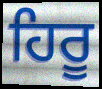
ਹਿਰੂ